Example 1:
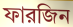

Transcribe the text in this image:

ফারজিন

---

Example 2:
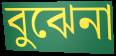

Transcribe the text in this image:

বুঝেনা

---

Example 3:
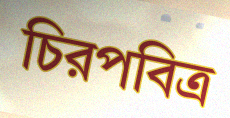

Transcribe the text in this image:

চিরপবিত্র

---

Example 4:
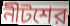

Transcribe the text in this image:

নীটশের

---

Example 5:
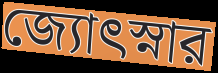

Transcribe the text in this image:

জ্যোৎস্নার